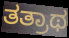
ತತ್ರಾಥ